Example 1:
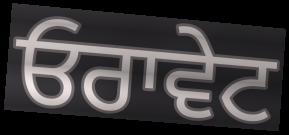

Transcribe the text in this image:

ਓਰਾਵੇਟ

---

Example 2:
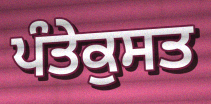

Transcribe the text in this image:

ਪੰਤੇਕੁਸਤ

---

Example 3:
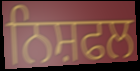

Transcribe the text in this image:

ਨਿਸ਼ਫਲ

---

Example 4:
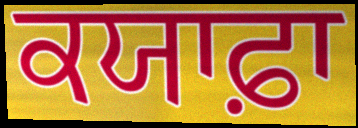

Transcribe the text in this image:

ਕਯਾਫ਼ਾ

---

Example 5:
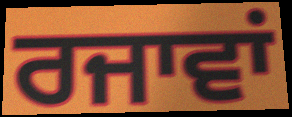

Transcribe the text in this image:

ਰਜਾਵਾਂ